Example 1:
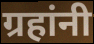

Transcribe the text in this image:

ग्रहांनी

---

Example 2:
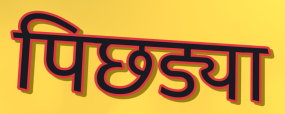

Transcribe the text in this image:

पिछड्या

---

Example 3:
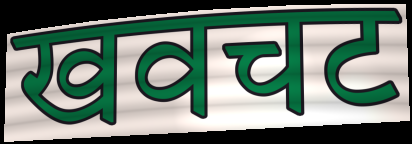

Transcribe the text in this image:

खवचट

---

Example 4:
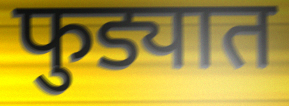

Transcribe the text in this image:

फुड्यात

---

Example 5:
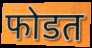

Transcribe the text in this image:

फोडत